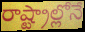
రాష్ట్రాల్లోనే